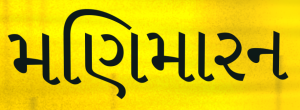
મણિમારન